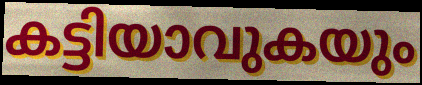
കട്ടിയാവുകയും